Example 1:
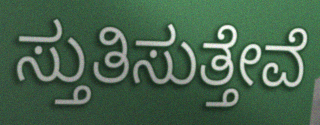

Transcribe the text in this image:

ಸ್ತುತಿಸುತ್ತೇವೆ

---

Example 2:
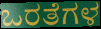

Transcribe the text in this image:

ಒರತೆಗಳ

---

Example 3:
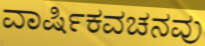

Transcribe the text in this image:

ವಾರ್ಷಿಕವಚನವು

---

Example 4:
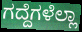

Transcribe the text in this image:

ಗದ್ದೆಗಳೆಲ್ಲಾ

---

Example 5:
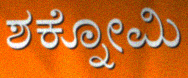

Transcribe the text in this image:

ಶಕ್ನೋಮಿ